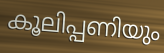
കൂലിപ്പണിയും